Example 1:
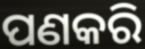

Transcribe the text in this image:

ପଣକରି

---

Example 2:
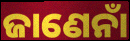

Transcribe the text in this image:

ଜାଣେନାଁ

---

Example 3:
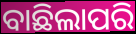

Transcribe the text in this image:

ବାଛିଲାପରି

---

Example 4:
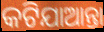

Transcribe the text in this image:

କଟିଯାଆନ୍ତା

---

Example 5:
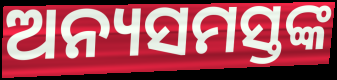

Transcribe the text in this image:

ଅନ୍ୟସମସ୍ତଙ୍କ